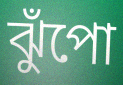
ঝুঁপো